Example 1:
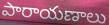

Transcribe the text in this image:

పారాయణాలు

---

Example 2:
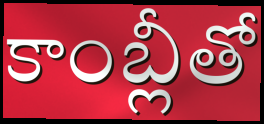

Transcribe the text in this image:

కాంబ్లీతో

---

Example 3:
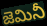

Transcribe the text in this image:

జెమినీ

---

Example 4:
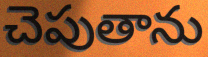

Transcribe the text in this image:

చెపుతాను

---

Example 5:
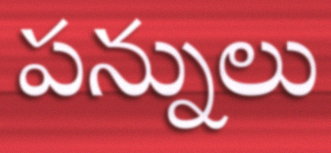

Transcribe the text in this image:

పన్నులు